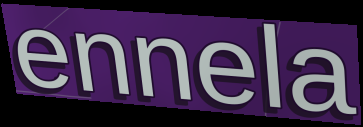
ennela